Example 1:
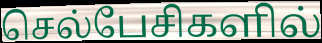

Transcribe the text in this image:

செல்பேசிகளில்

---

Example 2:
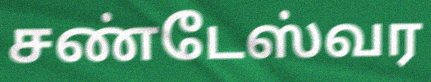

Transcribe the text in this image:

சண்டேஸ்வர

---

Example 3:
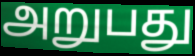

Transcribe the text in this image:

அறுபது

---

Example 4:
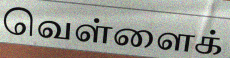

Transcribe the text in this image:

வெள்ளைக்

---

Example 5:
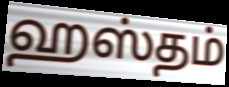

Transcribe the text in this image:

ஹஸ்தம்